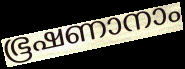
ഭൂഷണാനാം